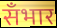
सँभार